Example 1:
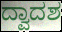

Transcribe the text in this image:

ದ್ವಾದಶ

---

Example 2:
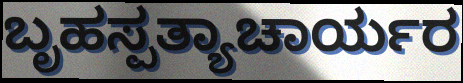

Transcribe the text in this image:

ಬೃಹಸ್ಪತ್ಯಾಚಾರ್ಯರ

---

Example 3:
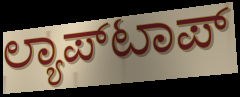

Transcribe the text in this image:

ಲ್ಯಾಪ್‍ಟಾಪ್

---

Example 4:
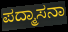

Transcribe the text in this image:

ಪದ್ಮಾಸನಾ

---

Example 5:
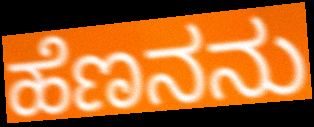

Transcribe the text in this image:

ಹೆಣನನು